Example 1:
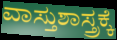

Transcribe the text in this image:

ವಾಸ್ತುಶಾಸ್ತ್ರಕ್ಕೆ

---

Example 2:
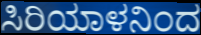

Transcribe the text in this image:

ಸಿರಿಯಾಳನಿಂದ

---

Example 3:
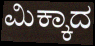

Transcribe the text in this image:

ಮಿಕ್ಕಾದ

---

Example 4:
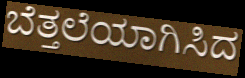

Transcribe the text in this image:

ಬೆತ್ತಲೆಯಾಗಿಸಿದ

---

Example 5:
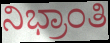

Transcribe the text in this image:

ನಿಭ್ರಾಂತಿ